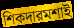
শিকদারমশাই